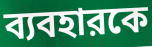
ব্যবহারকে